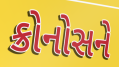
ક્રોનોસને